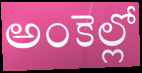
అంకెల్లో